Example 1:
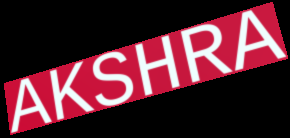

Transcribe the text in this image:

AKSHRA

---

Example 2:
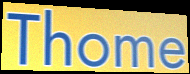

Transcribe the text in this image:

Thome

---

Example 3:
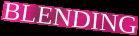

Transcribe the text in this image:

BLENDING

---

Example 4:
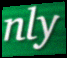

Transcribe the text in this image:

nly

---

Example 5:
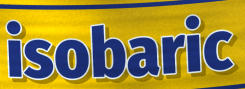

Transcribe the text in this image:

isobaric